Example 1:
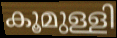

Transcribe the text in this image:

കൂമുള്ളി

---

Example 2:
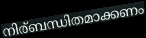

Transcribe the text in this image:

നിര്ബന്ധിതമാക്കണം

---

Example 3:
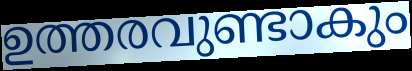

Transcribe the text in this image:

ഉത്തരവുണ്ടാകും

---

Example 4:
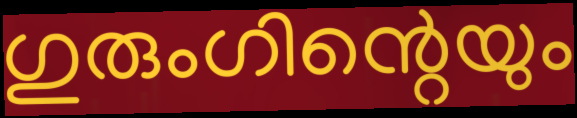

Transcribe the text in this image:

ഗുരുംഗിന്റെയും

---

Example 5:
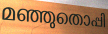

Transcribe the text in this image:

മഞ്ഞുതൊപ്പി